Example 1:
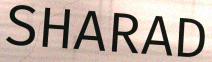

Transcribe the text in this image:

SHARAD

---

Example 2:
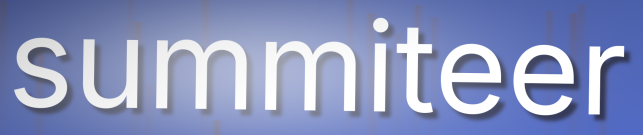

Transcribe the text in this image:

summiteer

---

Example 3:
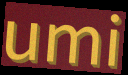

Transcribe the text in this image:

umi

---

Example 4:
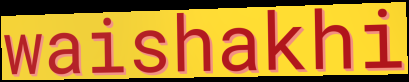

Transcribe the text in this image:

waishakhi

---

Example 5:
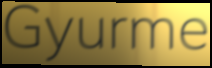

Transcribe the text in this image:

Gyurme